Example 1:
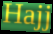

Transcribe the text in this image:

Hajj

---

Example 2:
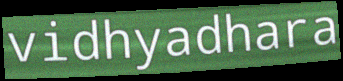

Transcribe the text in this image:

vidhyadhara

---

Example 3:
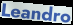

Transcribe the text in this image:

Leandro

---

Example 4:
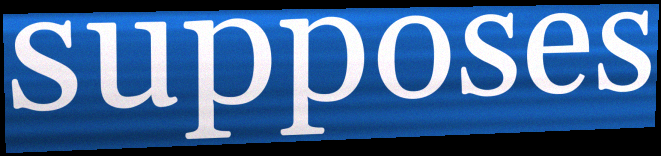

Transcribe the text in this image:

supposes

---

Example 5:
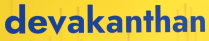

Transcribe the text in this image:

devakanthan